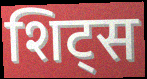
शिट्स